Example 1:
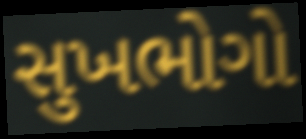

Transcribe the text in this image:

સુખભોગો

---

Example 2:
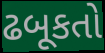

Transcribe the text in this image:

ઢબૂકતો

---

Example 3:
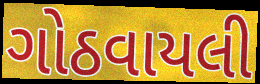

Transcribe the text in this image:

ગોઠવાયલી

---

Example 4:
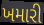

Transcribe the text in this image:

ખમારી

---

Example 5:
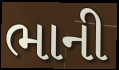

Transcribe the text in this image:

ભાની